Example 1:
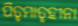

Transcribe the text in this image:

ପିତୃମାତୃହୀନା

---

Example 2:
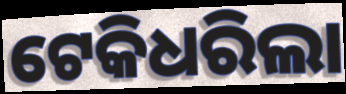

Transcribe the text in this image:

ଟେକିଧରିଲା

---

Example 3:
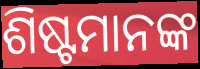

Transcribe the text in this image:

ଶିଷ୍ଟମାନଙ୍କ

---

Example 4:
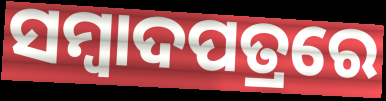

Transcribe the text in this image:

ସମ୍ୱାଦପତ୍ରରେ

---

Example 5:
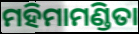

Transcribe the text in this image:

ମହିମାମଣ୍ଡିତା